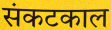
संकटकाल